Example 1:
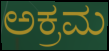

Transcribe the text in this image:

ಅಕ್ರಮ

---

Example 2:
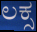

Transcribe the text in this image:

ಲಕ್ಸ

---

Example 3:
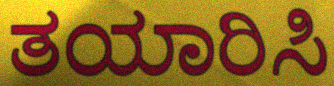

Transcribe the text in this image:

ತಯಾರಿಸಿ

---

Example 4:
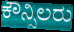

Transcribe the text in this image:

ಕೌನ್ಸಿಲರು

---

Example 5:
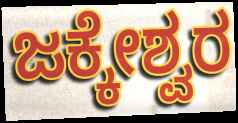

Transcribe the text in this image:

ಜಕ್ಕೇಶ್ವರ